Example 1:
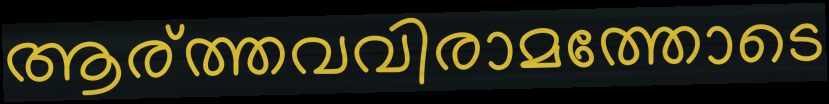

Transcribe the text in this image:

ആര്ത്തവവിരാമത്തോടെ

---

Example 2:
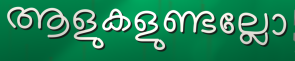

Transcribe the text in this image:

ആളുകളുണ്ടല്ലോ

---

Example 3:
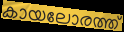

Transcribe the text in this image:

കായലോരത്ത്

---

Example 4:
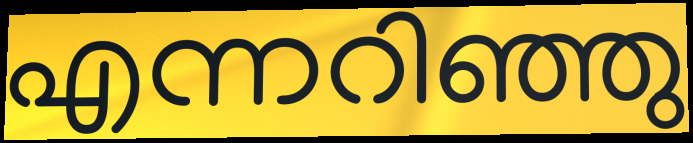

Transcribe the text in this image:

എന്നറിഞ്ഞു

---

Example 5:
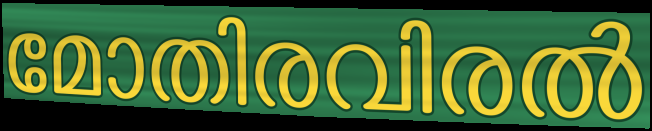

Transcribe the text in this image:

മോതിരവിരൽ